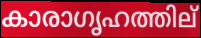
കാരാഗൃഹത്തില്